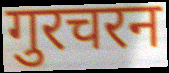
गुरचरन